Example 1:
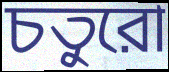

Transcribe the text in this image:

চতুরো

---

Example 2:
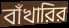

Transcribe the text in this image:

বাঁখারির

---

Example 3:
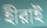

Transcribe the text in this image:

হীরাই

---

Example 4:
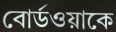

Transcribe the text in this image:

বোর্ডওয়াকে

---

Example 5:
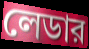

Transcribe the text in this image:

লেডার